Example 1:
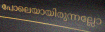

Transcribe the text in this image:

പോലെയായിരുന്നല്ലോ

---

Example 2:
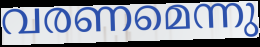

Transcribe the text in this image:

വരണമെന്നു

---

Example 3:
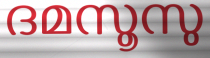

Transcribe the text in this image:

ദമസൂസു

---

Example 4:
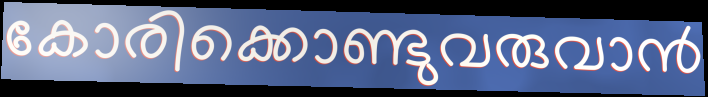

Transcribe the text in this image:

കോരിക്കൊണ്ടുവരുവാൻ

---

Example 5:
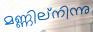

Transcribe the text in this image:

മണ്ണില്നിന്നു